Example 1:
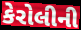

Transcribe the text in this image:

કેરોલીની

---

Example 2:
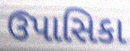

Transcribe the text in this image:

ઉપાસિકા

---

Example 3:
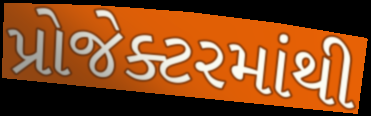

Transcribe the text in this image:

પ્રોજેક્ટરમાંથી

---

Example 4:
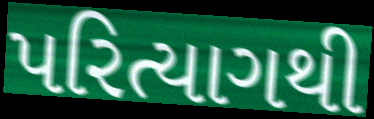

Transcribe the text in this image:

પરિત્યાગથી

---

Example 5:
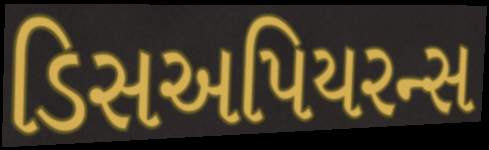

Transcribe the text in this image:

ડિસઅપિયરન્સ